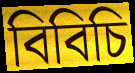
বিবিচি